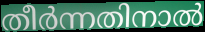
തീർന്നതിനാൽ